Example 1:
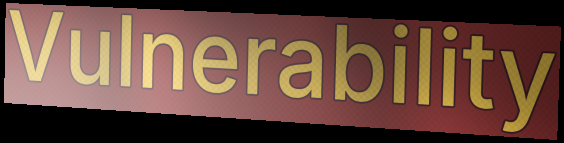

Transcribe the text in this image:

Vulnerability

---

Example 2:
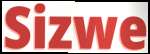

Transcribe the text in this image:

Sizwe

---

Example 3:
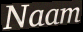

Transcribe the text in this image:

Naam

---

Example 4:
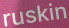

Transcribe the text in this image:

ruskin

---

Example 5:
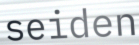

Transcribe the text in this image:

seiden